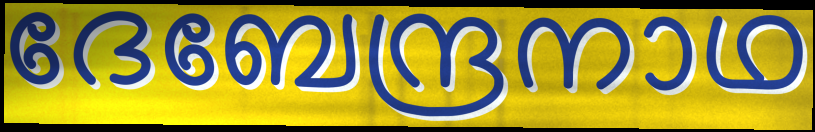
ദേബേന്ദ്രനാഥ